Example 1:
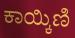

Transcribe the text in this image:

ಕಾಯ್ಕಿಣಿ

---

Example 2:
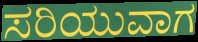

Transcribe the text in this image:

ಸರಿಯುವಾಗ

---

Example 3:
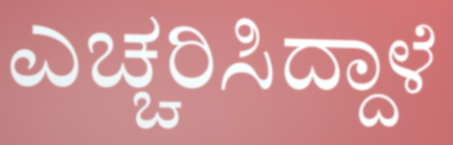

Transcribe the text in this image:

ಎಚ್ಚರಿಸಿದ್ದಾಳೆ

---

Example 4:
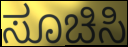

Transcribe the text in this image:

ಸೂಚಿಸಿ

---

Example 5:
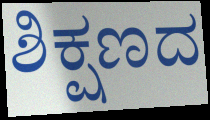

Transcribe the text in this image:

ಶಿಕ್ಷಣದ